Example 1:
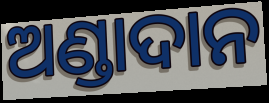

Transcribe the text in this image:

ଅଣ୍ଡାଦାନ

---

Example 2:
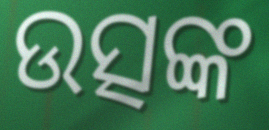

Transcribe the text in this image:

ଉତ୍ସଙ୍କ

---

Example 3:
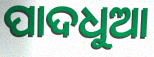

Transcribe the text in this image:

ପାଦଧୁଆ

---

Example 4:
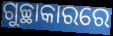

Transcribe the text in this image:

ଗୁଚ୍ଛାକାରରେ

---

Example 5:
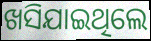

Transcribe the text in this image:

ଖସିଯାଇଥିଲେ